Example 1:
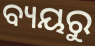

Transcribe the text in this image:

ବ୍ୟୟରୁ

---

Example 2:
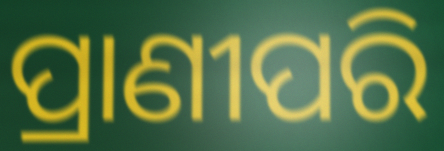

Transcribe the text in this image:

ପ୍ରାଣୀପରି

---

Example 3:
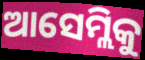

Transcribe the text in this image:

ଆସେମ୍ଲିକୁ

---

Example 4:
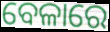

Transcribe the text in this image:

ବେଳାରେ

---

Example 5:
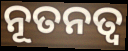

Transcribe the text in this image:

ନୂତନତ୍ୱ